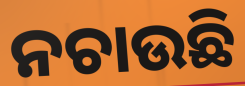
ନଚାଉଛି